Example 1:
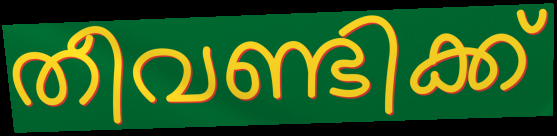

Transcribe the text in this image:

തീവണ്ടിക്ക്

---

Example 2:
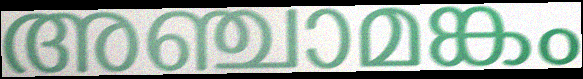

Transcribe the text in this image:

അഞ്ചാമങ്കം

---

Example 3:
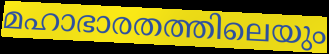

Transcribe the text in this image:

മഹാഭാരതത്തിലെയും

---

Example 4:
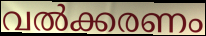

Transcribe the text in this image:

വൽക്കരണം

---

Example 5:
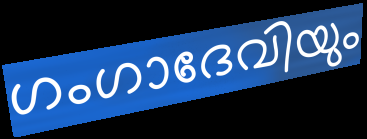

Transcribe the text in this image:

ഗംഗാദേവിയും